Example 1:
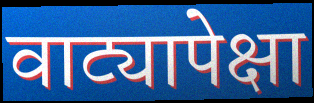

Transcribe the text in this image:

वाट्यापेक्षा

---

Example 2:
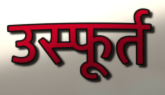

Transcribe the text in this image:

उस्फूर्त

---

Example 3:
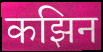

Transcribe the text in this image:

कझिन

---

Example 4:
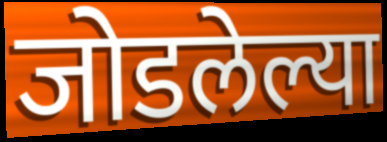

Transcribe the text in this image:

जोडलेल्या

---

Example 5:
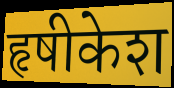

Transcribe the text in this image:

हृषीकेश